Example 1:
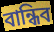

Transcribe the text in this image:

বান্ধিব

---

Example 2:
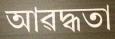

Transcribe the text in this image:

আৱদ্ধতা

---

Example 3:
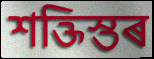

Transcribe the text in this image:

শক্তিস্তৰ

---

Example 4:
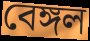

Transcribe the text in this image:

বেঙ্গল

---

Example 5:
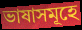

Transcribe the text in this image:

ভাষাসমূহে